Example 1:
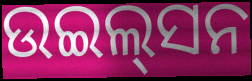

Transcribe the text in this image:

ଉଇଲ୍‌ସନ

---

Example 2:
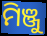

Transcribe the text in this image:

ମିଞ୍ଜୁ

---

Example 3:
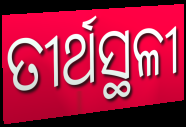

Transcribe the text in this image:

ତୀର୍ଥସ୍ଥଳୀ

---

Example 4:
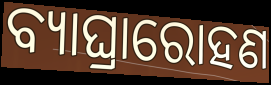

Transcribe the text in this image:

ବ୍ୟାଘ୍ରାରୋହଣ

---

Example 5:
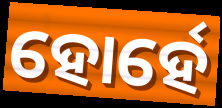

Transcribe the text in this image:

ହୋର୍ହେ